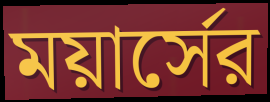
ময়ার্সের